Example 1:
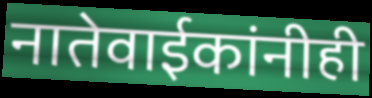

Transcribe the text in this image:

नातेवाईकांनीही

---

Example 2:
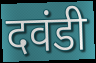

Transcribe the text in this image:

दवंडी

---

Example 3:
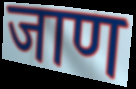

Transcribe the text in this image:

जाण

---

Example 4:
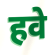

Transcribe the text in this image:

हवे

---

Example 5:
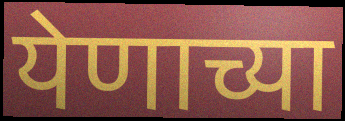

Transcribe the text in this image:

येणाच्या